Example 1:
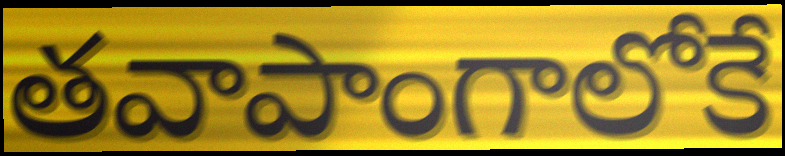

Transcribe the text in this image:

తవాపాంగాలోకే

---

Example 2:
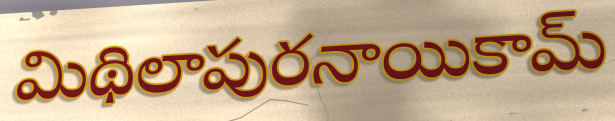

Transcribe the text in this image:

మిథిలాపురనాయికామ్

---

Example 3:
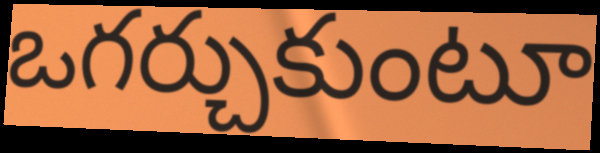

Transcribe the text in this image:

ఒగర్చుకుంటూ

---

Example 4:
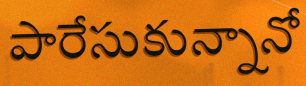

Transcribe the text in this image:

పారేసుకున్నానో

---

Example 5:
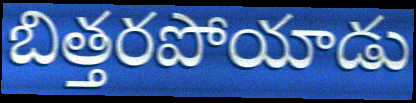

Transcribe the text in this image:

బిత్తరపోయాడు